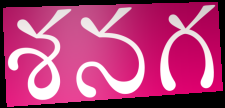
శనగ